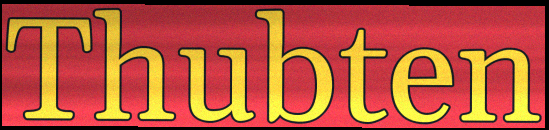
Thubten